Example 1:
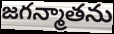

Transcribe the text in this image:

జగన్మాతను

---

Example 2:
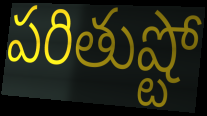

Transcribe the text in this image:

పరితుష్టో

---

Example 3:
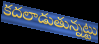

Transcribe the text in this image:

కదలాడుతున్నట్టు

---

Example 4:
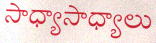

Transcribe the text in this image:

సాధ్యాసాధ్యాలు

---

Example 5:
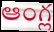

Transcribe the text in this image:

ఆంగ్ల